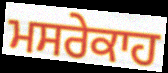
ਮਸਰੇਕਾਹ